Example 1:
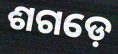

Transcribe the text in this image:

ଶଗଡ଼େ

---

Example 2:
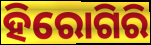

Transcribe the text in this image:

ହିରୋଗିରି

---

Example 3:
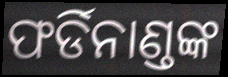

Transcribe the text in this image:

ଫର୍ଡିନାଣ୍ଡଙ୍କ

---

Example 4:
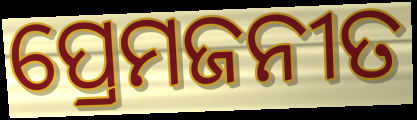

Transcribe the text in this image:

ପ୍ରେମଜନୀତ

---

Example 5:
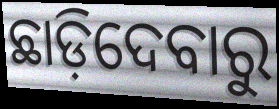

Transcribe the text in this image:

ଛାଡ଼ିଦେବାରୁ